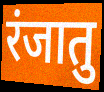
रंजातु